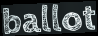
ballot